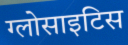
ग्लोसाइटिस